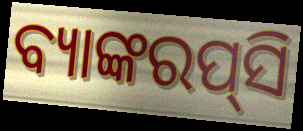
ବ୍ୟାଙ୍କରପ୍‌ସି